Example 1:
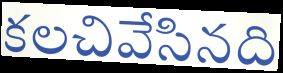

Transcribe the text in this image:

కలచివేసినది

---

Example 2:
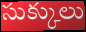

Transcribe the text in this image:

సుక్కులు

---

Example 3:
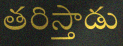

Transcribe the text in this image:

తరిస్తాడు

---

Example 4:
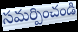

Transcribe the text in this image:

సమర్పించండి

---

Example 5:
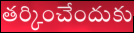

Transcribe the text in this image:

తర్కించేందుకు